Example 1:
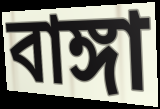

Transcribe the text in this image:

বাঙ্গা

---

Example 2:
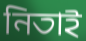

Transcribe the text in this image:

নিতাই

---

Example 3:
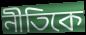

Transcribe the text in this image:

নীতিকে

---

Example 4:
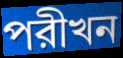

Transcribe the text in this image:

পরীখন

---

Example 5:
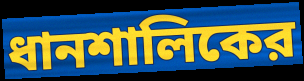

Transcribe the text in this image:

ধানশালিকের